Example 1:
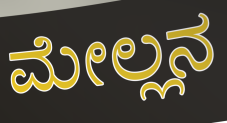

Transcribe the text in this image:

ಮೇಲ್ಲನ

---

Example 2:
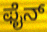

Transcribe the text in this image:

ಫೈನ್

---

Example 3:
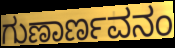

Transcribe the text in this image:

ಗುಣಾರ್ಣವನಂ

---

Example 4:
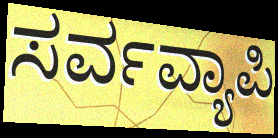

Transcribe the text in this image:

ಸರ್ವವ್ಯಾಪಿ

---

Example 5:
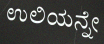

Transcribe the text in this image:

ಉಲಿಯನ್ನೇ